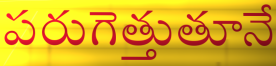
పరుగెత్తుతూనే